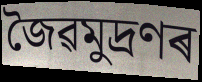
জৈৱমুদ্ৰণৰ